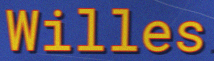
Willes